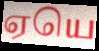
ஏயெ